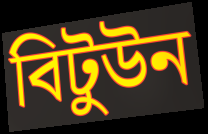
বিটুউন